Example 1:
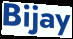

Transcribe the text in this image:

Bijay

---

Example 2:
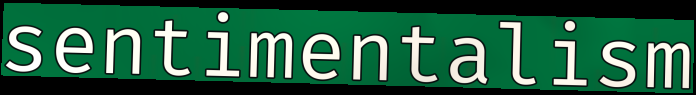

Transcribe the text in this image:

sentimentalism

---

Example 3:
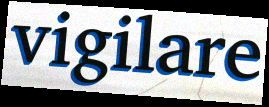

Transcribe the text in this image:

vigilare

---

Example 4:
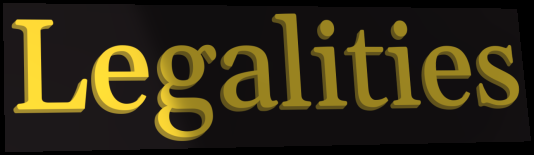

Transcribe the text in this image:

Legalities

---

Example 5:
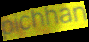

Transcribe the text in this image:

pichhan